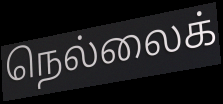
நெல்லைக்